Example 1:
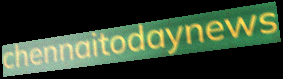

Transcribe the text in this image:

chennaitodaynews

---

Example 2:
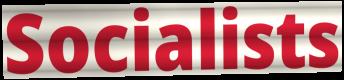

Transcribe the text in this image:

Socialists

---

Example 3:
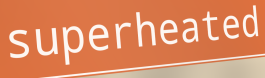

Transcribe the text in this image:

superheated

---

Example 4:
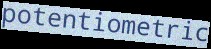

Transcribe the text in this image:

potentiometric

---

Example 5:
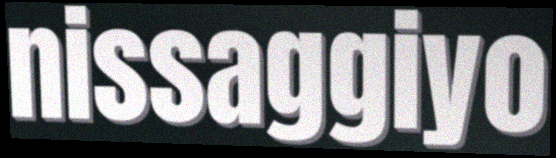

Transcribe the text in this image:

nissaggiyo